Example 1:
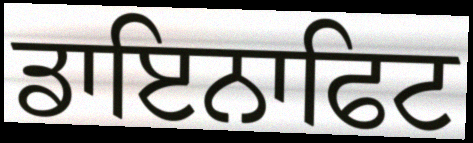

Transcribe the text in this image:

ਡਾਇਨਾਫਿਟ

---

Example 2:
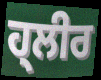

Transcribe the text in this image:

ਹ੍ਲੀਰ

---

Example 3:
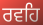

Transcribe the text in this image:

ਰਵਹਿ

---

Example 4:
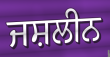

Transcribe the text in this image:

ਜਸ਼ਲੀਨ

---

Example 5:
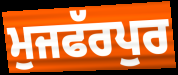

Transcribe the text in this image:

ਮੁਜਫੱਰਪੁਰ